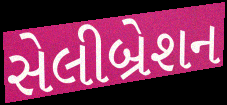
સેલીબ્રેશન